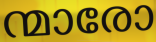
ന്മാരോ